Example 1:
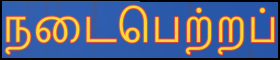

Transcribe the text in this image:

நடைபெற்றப்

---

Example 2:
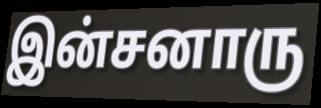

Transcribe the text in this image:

இன்சனாரு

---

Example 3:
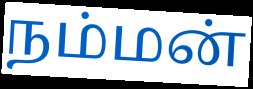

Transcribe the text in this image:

நம்மன்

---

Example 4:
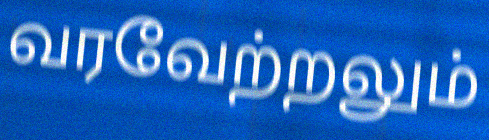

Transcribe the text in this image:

வரவேற்றலும்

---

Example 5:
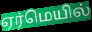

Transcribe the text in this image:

ஏர்மெயில்